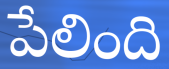
పేలింది